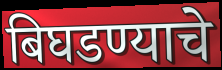
बिघडण्याचे